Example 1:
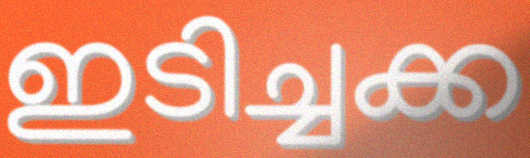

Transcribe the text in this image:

ഇടിച്ചക്ക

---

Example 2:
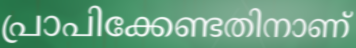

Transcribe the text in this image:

പ്രാപിക്കേണ്ടതിനാണ്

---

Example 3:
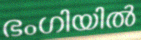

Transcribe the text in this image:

ഭംഗിയിൽ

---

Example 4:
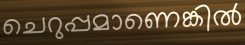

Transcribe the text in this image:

ചെറുപ്പമാണെങ്കിൽ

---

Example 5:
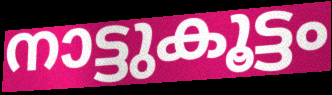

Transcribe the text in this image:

നാട്ടുകൂട്ടം